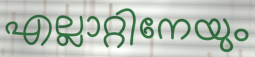
എല്ലാറ്റിനേയും